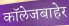
कॉलेजबाहेर